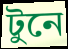
টুনে